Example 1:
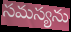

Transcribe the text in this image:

సమస్యను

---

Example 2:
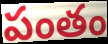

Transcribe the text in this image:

పంతం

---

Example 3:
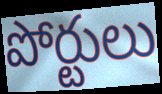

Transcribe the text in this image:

పోర్టులు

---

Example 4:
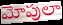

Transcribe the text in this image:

మోపులా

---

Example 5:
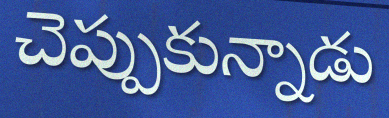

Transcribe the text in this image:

చెప్పుకున్నాడు